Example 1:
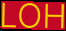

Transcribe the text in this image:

LOH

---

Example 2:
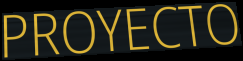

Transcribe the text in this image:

PROYECTO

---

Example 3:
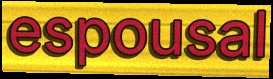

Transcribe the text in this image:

espousal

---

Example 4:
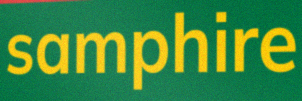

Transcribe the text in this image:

samphire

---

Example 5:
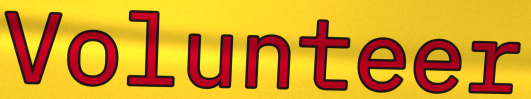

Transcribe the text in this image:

Volunteer